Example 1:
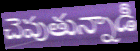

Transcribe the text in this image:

చెపుతున్నాడీ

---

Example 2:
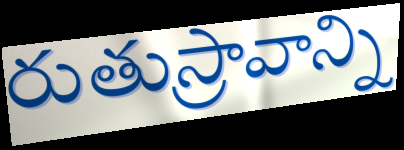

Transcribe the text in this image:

రుతుస్రావాన్ని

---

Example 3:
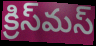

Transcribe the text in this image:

క్రిస్‌మస్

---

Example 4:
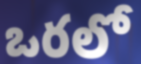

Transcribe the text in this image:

ఒరలో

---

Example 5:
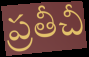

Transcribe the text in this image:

ప్రతీచీ